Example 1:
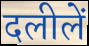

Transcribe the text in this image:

दलीलें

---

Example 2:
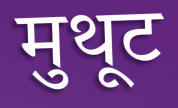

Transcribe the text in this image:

मुथूट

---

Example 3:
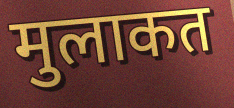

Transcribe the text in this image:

मुलाकत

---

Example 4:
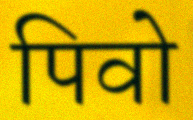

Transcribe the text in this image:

पिवो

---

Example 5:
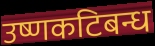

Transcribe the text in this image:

उष्णकटिबन्ध